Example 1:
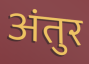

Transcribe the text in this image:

अंतुर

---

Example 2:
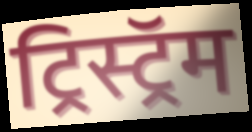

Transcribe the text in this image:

ट्रिस्ट्रॅम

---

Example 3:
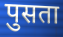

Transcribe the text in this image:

पुसता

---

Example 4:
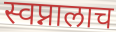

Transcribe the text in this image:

स्वप्नालाच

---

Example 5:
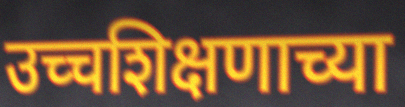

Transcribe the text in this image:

उच्चशिक्षणाच्या